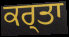
ਕਰ੍ਤਾ